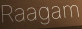
Raagam